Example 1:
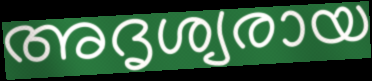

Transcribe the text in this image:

അദൃശ്യരായ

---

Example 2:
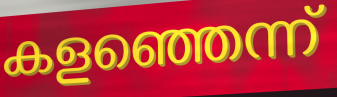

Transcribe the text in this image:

കളഞ്ഞെന്ന്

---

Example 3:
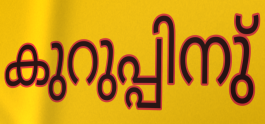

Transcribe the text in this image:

കുറുപ്പിനു്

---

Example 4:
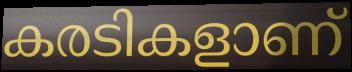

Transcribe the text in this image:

കരടികളാണ്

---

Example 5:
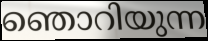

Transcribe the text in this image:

ഞൊറിയുന്ന